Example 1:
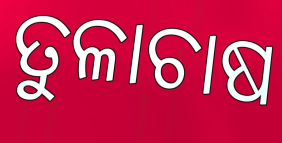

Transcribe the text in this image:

ତୁଳାଚାଷ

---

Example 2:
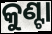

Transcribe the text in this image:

କୁଣ୍ଟା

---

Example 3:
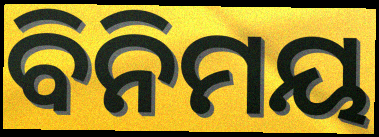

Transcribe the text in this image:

ବିନିମୟ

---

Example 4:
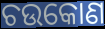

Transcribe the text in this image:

ଚଉକୋଣ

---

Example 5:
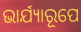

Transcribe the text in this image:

ଭାର୍ଯ୍ୟାରୂପେ